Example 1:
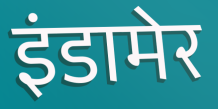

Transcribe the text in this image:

इंडामेर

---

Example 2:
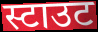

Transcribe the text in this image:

स्टाउट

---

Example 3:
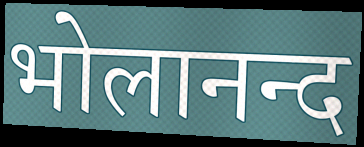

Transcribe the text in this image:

भोलानन्द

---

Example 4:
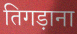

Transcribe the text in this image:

तिगड़ाना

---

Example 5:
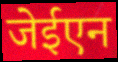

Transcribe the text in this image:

जेईएन